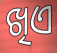
ଖିଏ